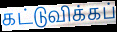
கட்டுவிக்கப்